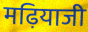
मढ़ियाजी